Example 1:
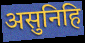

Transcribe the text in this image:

असुनिहि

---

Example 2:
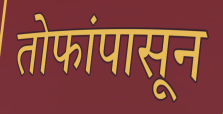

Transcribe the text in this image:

तोफांपासून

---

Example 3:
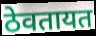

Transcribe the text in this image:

ठेवतायत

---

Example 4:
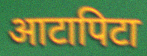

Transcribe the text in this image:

आटापिटा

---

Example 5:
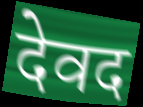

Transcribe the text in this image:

देवद